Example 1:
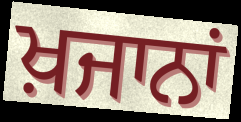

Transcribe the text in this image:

ਖ਼ਜਾਨਾਂ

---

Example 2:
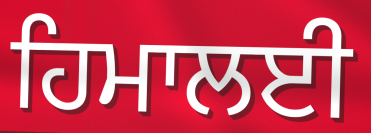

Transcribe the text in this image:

ਹਿਮਾਲਈ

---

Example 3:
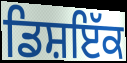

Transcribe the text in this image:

ਡਿਸ਼ਇੱਕ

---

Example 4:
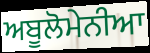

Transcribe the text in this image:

ਅਬੂਲੋਮੇਨੀਆ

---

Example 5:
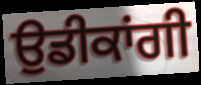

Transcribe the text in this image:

ਉਡੀਕਾਂਗੀ